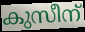
കുസീന്